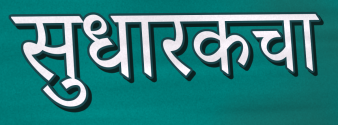
सुधारकचा